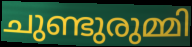
ചുണ്ടുരുമ്മി